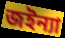
জইন্যা